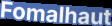
Fomalhaut